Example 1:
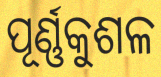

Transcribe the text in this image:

ପୂର୍ଣ୍ଣକୁଶଳ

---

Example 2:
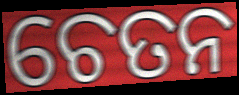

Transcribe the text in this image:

ଚେତନ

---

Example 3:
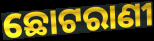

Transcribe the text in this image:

ଛୋଟରାଣୀ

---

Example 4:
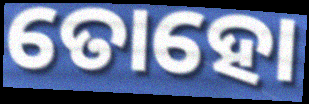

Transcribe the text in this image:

ତୋହୋ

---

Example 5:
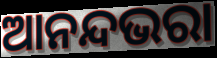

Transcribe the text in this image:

ଆନନ୍ଦଭରା